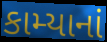
કામ્યાનાં